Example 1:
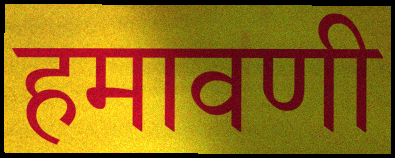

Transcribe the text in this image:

हमावणी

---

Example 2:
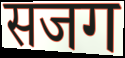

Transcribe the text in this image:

सजग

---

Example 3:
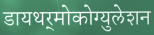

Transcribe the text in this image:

डायथर्मोकोग्युलेशन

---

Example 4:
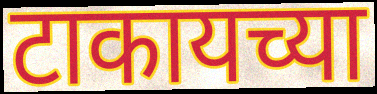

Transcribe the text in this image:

टाकायच्या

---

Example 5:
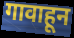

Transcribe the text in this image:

गावाहून